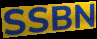
SSBN